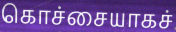
கொச்சையாகச்